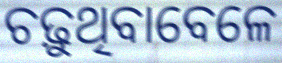
ଚଢ଼ୁଥିବାବେଳେ